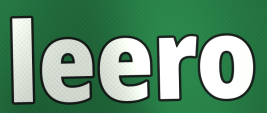
leero